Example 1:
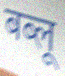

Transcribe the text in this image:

बब्लू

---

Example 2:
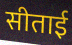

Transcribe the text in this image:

सीताई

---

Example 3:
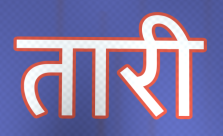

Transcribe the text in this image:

तारी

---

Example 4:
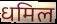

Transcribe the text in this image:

धमिल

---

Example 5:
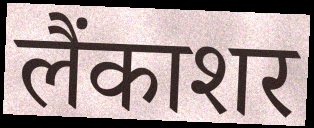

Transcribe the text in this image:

लैंकाशर